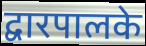
द्वारपालके